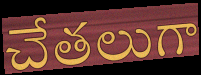
చేతలుగా